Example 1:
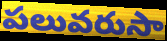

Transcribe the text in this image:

పలువరుసా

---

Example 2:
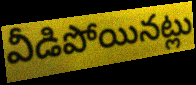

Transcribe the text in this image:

వీడిపోయినట్లు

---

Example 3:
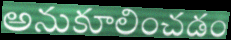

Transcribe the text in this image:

అనుకూలించడం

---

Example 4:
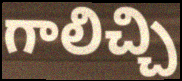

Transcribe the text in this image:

గాలిచ్చి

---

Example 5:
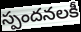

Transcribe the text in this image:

స్పందనలకీ